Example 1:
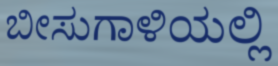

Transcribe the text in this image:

ಬೀಸುಗಾಳಿಯಲ್ಲಿ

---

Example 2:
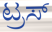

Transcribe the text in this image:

ಟ್ರಸ್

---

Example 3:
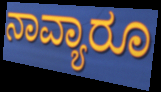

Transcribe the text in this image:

ನಾವ್ಯಾರೂ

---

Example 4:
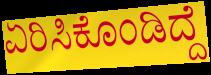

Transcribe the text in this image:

ಏರಿಸಿಕೊಂಡಿದ್ದೆ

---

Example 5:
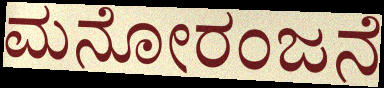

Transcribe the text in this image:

ಮನೋರಂಜನೆ